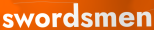
swordsmen